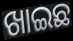
ଖାଇଛ